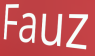
Fauz